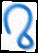
റു